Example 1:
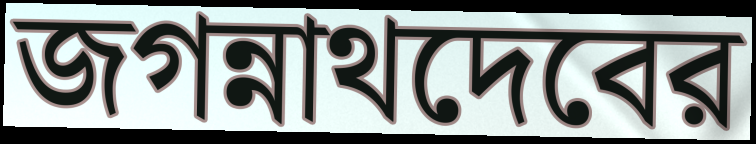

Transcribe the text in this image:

জগন্নাথদেবের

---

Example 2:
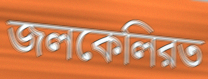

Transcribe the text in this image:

জলকেলিরত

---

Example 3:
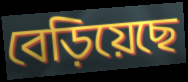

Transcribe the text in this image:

বেড়িয়েছে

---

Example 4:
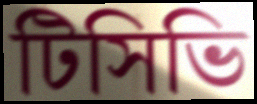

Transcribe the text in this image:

টিসিভি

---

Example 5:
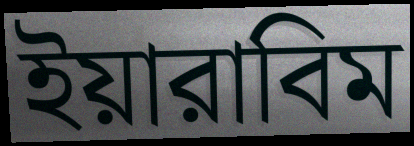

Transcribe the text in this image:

ইয়ারাবিম